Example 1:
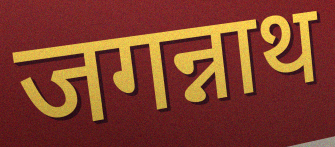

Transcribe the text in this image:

जगन्नाथ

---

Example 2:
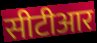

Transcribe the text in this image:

सीटीआर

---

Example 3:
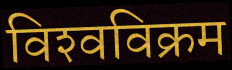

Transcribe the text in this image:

विश्वविक्रम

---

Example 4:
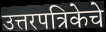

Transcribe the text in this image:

उत्तरपत्रिकेचे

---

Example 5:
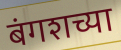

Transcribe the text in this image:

बंगशच्या